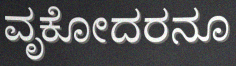
ವೃಕೋದರನೂ